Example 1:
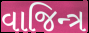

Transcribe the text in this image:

વાજિન્ત્ર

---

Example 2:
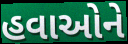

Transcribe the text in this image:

હવાઓને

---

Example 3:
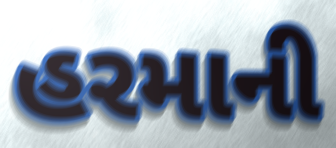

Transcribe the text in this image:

હરમાની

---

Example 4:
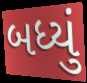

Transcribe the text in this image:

બધ્યું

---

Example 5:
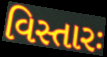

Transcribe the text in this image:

વિસ્તારઃ